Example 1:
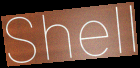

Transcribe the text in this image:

Shell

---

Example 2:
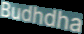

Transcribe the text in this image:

Budhdha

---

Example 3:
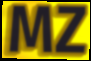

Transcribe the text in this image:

MZ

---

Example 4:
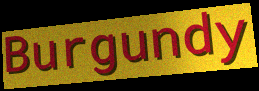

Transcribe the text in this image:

Burgundy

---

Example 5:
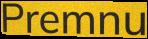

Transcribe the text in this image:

Premnu